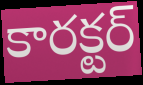
కారక్టర్